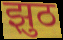
झुठ